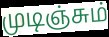
முடிஞ்சும்